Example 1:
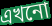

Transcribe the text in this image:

এখনো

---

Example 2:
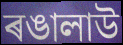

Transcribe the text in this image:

ৰঙালাউ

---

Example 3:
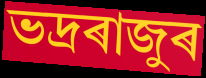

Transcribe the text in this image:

ভদ্ৰৰাজুৰ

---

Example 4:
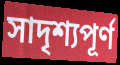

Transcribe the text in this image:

সাদৃশ্যপূৰ্ণ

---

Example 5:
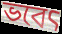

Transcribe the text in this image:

ভবেৎ